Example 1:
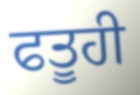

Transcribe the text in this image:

ਫਤੂਹੀ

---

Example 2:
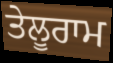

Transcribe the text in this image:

ਤੇਲੂਰਾਮ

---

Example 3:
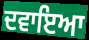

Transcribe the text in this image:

ਦਵਾਇਆ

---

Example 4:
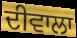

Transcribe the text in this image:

ਦੀਵਾਲਾ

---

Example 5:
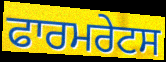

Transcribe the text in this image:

ਫਾਰਮਰੇਟਸ